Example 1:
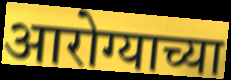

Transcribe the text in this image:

आरोग्याच्या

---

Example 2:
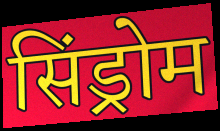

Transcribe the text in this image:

सिंड्रोम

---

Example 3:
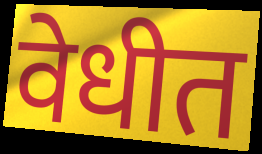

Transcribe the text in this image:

वेधीत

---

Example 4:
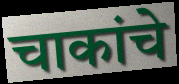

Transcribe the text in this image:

चाकांचे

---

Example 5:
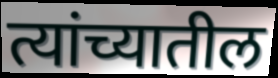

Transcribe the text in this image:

त्यांच्यातील